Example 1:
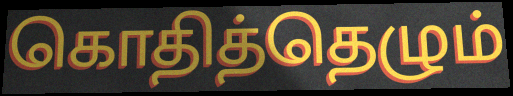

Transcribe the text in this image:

கொதித்தெழும்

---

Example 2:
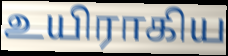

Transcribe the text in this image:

உயிராகிய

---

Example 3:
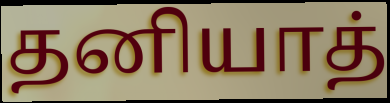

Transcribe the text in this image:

தனியாத்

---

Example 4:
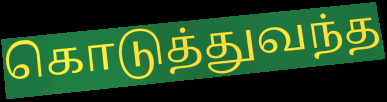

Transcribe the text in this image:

கொடுத்துவந்த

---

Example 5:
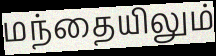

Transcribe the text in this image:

மந்தையிலும்